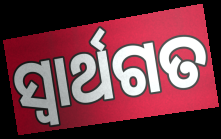
ସ୍ୱାର୍ଥଗତ